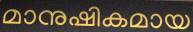
മാനുഷികമായ